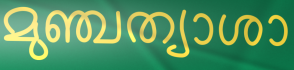
മുഞ്ചത്യാശാ